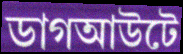
ডাগআউটে